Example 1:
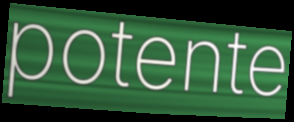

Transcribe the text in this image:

potente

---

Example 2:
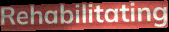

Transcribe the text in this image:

Rehabilitating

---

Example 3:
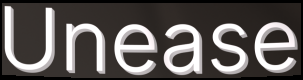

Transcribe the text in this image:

Unease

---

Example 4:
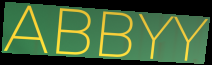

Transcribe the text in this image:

ABBYY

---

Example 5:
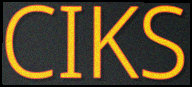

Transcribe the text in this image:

CIKS